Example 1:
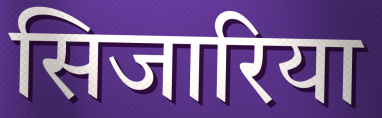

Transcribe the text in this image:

सिजारिया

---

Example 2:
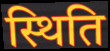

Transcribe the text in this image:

स्‍थिति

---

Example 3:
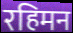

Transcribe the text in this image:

रहिमन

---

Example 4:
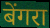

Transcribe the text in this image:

बेंगरा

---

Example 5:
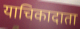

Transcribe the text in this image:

याचिकादाता